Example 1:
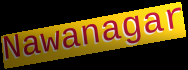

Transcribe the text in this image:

Nawanagar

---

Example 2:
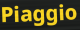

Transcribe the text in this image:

Piaggio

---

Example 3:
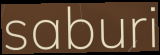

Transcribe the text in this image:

saburi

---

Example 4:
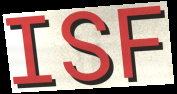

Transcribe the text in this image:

ISF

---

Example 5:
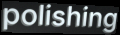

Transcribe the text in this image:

polishing